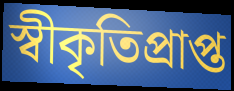
স্বীকৃতিপ্ৰাপ্ত